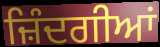
ਜ਼ਿੰਦਗੀਆਂ